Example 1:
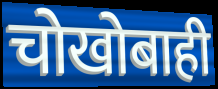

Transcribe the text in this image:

चोखोबाही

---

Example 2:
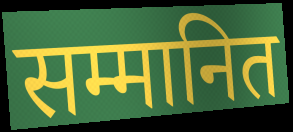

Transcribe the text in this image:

सम्मानित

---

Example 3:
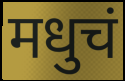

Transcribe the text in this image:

मधुचं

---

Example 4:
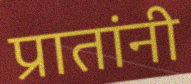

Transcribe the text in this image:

प्रातांनी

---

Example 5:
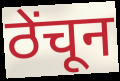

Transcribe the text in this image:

ठेंचून